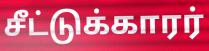
சீட்டுக்காரர்